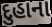
દુહાના